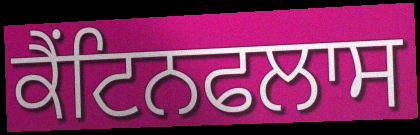
ਕੈਂਟਿਨਫਲਾਸ